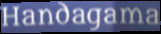
Handagama